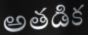
అతడిక